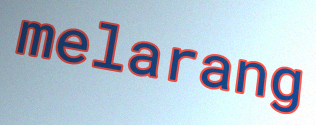
melarang